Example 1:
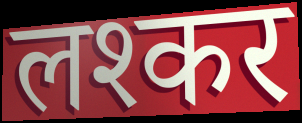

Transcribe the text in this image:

लश्कर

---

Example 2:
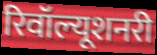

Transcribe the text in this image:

रिवॉल्यूशनरी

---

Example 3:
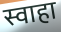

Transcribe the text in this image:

स्वाहा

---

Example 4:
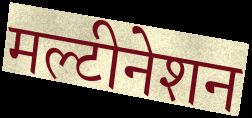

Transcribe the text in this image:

मल्टीनेशन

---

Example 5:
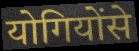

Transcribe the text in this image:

योगियोंसे